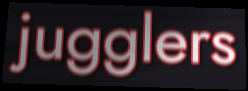
jugglers